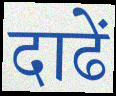
दाढें